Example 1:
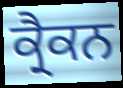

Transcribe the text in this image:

ਕ੍ਰੈਕਨ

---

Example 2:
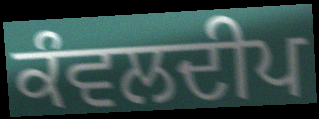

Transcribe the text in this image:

ਕੰਵਲਦੀਪ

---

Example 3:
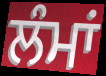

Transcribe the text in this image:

ਲੰਮਾਂ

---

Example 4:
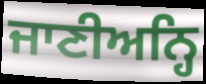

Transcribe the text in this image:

ਜਾਣੀਅਨ੍ਹਿ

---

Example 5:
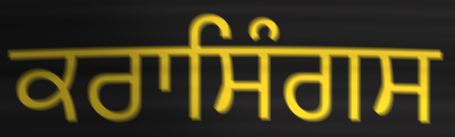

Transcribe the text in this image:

ਕਰਾਸਿੰਗਸ